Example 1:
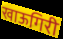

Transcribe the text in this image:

खाऊगिरी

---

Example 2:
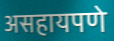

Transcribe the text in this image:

असहायपणे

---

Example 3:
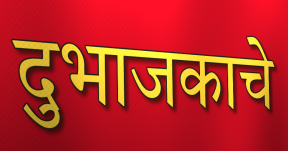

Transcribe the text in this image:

दुभाजकाचे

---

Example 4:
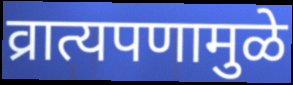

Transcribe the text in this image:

व्रात्यपणामुळे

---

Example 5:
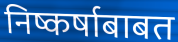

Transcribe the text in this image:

निष्कर्षाबाबत